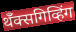
थॅँक्सगिव्हिंग